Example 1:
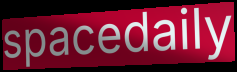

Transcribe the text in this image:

spacedaily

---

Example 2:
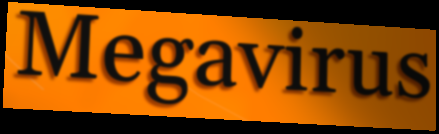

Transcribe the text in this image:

Megavirus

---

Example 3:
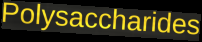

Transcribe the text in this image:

Polysaccharides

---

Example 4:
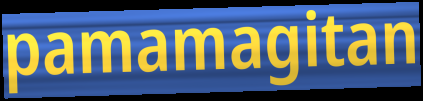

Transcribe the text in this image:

pamamagitan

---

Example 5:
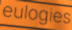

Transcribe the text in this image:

eulogies